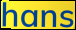
hans